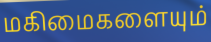
மகிமைகளையும்